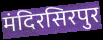
मंदिरसिरपुर